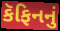
કૅફિનનું